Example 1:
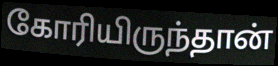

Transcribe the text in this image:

கோரியிருந்தான்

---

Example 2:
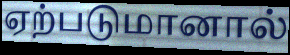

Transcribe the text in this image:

ஏற்படுமானால்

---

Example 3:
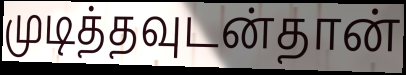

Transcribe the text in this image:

முடித்தவுடன்தான்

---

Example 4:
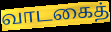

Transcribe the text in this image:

வாடகைத்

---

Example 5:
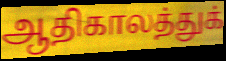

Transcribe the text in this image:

ஆதிகாலத்துக்